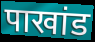
पाखांड